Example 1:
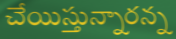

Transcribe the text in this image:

చేయిస్తున్నారన్న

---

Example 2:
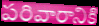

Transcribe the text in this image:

పరివారానికి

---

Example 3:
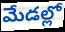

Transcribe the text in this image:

మేడల్లో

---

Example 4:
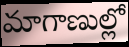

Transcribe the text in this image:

మాగాణుల్లో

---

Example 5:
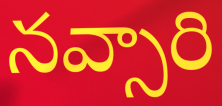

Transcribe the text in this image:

నవ్సారి